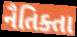
નૈતિક્તા